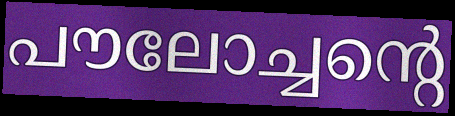
പൗലോച്ചന്റെ